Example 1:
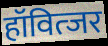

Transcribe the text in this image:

हॉवित्जर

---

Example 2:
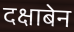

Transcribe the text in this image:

दक्षाबेन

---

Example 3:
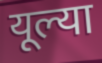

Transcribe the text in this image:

यूल्या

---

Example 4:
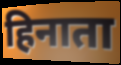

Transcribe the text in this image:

हिनाता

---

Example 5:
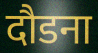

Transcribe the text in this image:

दौडना